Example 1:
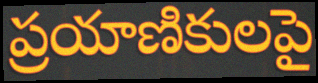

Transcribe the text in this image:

ప్రయాణికులపై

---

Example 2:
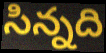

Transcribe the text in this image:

సిన్నది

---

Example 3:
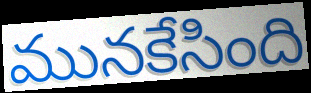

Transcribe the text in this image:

మునకేసింది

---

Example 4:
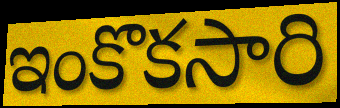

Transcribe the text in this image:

ఇంకొకసారి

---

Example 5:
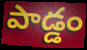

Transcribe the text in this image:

పాడ్డం